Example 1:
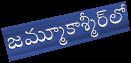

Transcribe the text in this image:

జమ్మూకాశ్మీర్‌లో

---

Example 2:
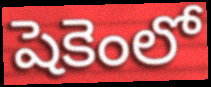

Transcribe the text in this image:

షెకెంలో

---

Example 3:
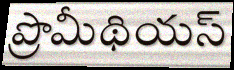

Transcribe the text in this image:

ప్రొమీథియస్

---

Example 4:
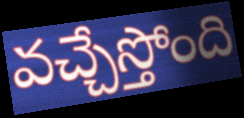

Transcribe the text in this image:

వచ్చేస్తోంది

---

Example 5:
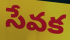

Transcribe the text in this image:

సేవక